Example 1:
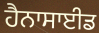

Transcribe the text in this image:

ਹੈਨਾਸਾਈਡ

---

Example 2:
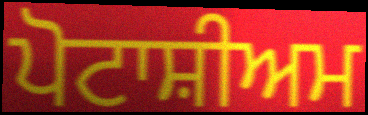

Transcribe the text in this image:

ਪੋਟਾਸ਼ੀਅਮ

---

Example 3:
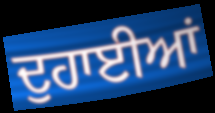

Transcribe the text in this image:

ਦੁਹਾਈਆਂ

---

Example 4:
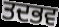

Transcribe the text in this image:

ਤਦਭਵ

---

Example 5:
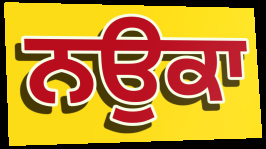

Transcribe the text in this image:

ਨਉਕਾ